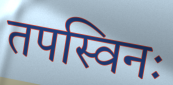
तपस्विनः